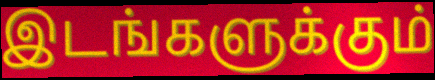
இடங்களுக்கும்